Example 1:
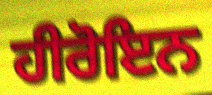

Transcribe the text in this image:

ਹੀਰੋਇਨ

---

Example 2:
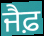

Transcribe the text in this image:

ਜੈਫ਼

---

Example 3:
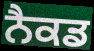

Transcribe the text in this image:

ਨੈਕਡ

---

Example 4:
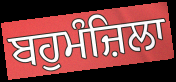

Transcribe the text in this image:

ਬਹੁਮੰਜ਼ਿਲਾ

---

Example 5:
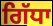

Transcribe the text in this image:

ਗਿੱਧਾ